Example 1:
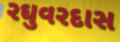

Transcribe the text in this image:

રઘુવરદાસ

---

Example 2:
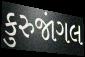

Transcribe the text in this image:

કુરુજાંગલ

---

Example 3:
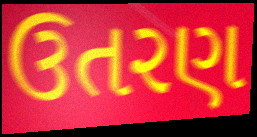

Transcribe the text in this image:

ઉતરણ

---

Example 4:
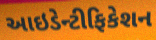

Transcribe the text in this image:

આઇડેન્ટીફિકેશન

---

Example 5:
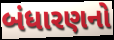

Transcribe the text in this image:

બંધારણનો